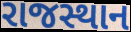
રાજસ્થાન